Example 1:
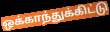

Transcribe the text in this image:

ஒக்காந்துக்கிட்டு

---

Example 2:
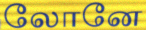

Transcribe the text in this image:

லோனே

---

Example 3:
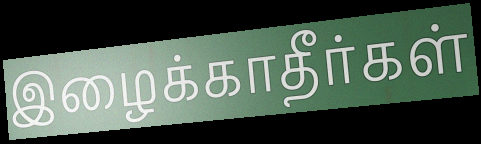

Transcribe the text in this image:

இழைக்காதீர்கள்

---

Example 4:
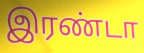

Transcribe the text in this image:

இரண்டா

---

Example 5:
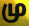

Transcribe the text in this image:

மு